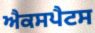
ਐਕਸਪੈਟਸ